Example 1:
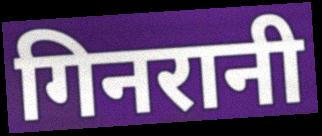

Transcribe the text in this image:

गिनरानी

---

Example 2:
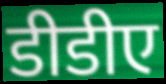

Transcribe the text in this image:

डीडीए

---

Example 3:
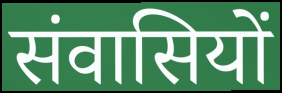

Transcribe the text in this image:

संवासियों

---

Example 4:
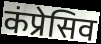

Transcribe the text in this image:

कंप्रेसिव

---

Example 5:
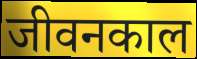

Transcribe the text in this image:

जीवनकाल